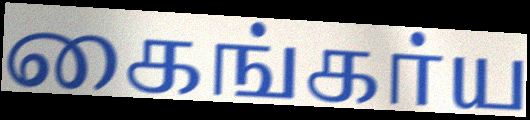
கைங்கர்ய